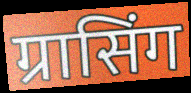
ग्रासिंग